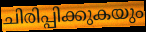
ചിരിപ്പിക്കുകയും